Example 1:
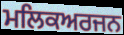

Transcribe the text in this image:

ਮਲਿਕਅਰਜਨ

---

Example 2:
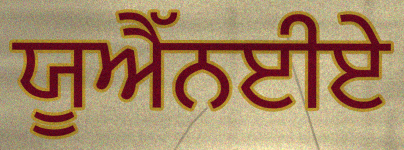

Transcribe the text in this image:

ਯੂਐੱਨਈਏ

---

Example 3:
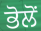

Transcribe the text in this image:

ਭੋਲੋਂ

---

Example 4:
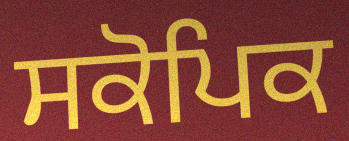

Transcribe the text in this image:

ਸਕੋਪਿਕ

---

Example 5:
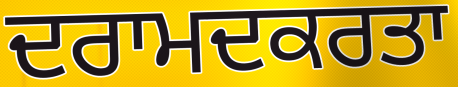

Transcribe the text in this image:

ਦਰਾਮਦਕਰਤਾ